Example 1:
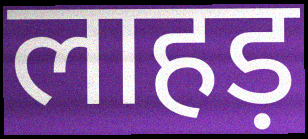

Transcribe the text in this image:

लाहड़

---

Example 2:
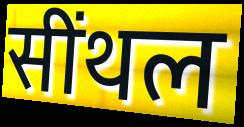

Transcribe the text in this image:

सींथल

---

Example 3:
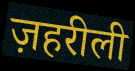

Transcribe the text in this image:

ज़हरीली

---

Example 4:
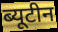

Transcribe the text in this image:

ब्यूटीन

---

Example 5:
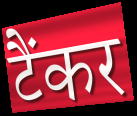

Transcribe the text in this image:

टैंकर